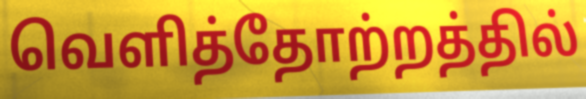
வெளித்தோற்றத்தில்